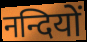
नन्दियों